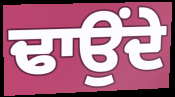
ਢਾਉਂਦੇ